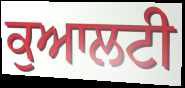
ਕੁਆਲਟੀ